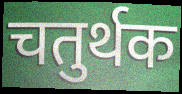
चतुर्थक